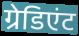
ग्रेडिएंट